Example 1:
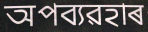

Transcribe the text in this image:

অপব্যৱহাৰ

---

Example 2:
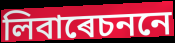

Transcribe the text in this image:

লিবাৰেচননে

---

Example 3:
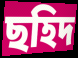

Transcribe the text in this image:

ছহিদ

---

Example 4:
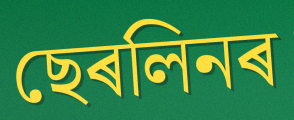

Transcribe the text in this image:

ছেৰলিনৰ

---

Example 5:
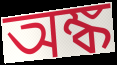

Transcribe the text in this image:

অঙ্ক